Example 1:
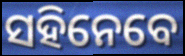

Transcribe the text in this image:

ସହିନେବେ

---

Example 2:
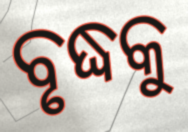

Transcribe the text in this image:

ବୃଦ୍ଧକୁ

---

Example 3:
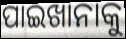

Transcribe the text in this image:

ପାଇଖାନାକୁ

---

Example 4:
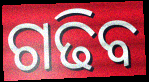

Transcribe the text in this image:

ଗଢିବ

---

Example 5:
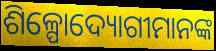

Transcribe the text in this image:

ଶିଳ୍ପୋଦ୍ୟୋଗୀମାନଙ୍କ